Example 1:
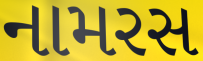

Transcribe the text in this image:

નામરસ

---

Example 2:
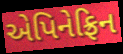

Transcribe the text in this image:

એપિનેફ્રિન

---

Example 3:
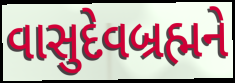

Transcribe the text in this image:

વાસુદેવબ્રહ્મને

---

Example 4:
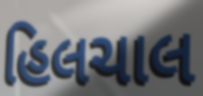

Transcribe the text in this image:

હિલચાલ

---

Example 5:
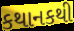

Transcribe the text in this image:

કથાનકથી